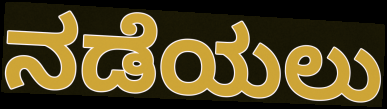
ನಡೆಯಲು